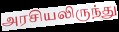
அரசியலிருந்து